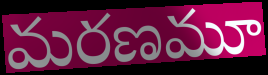
మరణమూ